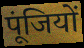
पूंजियों